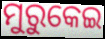
ମୁରୁକେଇ